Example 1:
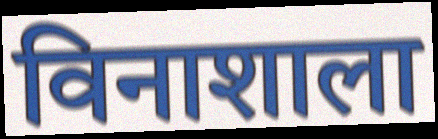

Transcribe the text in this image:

विनाशाला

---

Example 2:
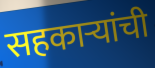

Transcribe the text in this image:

सहकाऱ्यांची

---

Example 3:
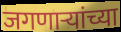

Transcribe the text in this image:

जगणाऱ्यांच्या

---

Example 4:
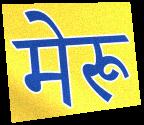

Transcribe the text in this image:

मेरू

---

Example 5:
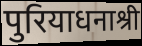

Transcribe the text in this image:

पुरियाधनाश्री